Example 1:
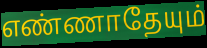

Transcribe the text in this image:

எண்ணாதேயும்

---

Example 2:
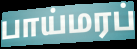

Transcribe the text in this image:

பாய்மரப்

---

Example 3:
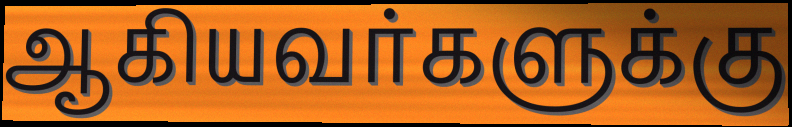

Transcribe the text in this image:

ஆகியவர்களுக்கு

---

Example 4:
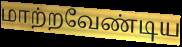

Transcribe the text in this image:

மாற்றவேண்டிய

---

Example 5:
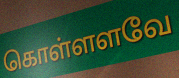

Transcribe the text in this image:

கொள்ளளவே